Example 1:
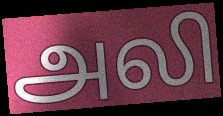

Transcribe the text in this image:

அலி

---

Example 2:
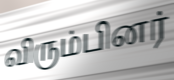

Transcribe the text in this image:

விரும்பினர்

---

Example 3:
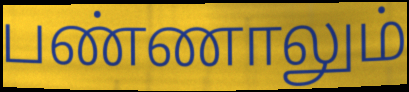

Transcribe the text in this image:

பண்ணாலும்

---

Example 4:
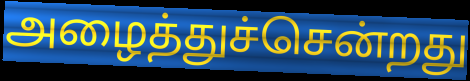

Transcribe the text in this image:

அழைத்துச்சென்றது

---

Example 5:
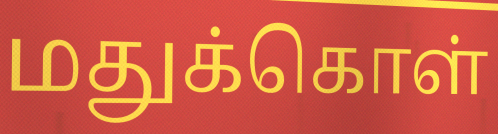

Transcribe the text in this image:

மதுக்கொள்